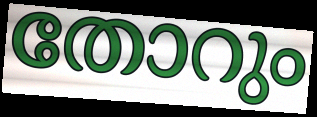
തോറും